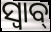
ସ୍ବାବ୍